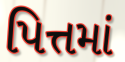
પિત્તમાં